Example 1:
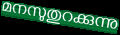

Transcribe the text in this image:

മനസുതുറക്കുന്നു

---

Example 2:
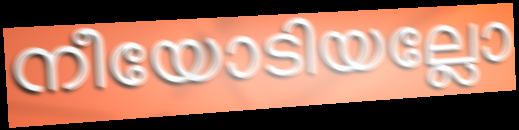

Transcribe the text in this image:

നീയോടിയല്ലോ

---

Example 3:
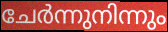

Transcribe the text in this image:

ചേർന്നുനിന്നും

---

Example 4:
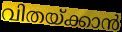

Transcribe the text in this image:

വിതയ്ക്കാൻ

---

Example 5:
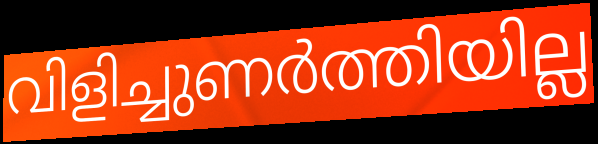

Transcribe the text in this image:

വിളിച്ചുണർത്തിയില്ല